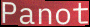
Panot